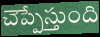
చెప్పేస్తుంది